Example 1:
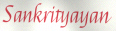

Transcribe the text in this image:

Sankrityayan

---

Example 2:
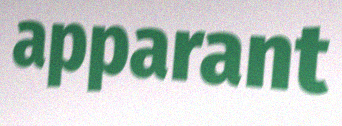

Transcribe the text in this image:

apparant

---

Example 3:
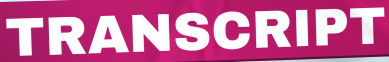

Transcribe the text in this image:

TRANSCRIPT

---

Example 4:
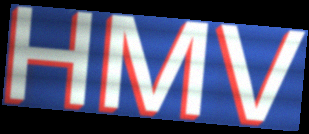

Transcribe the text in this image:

HMV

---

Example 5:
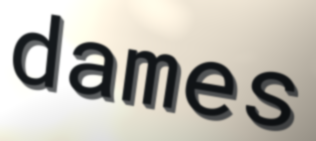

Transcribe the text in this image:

dames